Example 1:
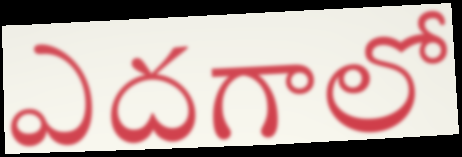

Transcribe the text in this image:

ఎదగాలో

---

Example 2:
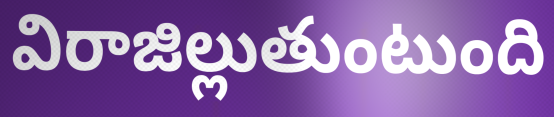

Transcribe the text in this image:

విరాజిల్లుతుంటుంది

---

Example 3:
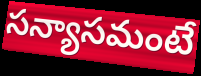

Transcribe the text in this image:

సన్యాసమంటే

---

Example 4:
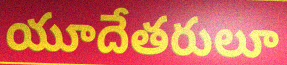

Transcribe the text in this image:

యూదేతరులూ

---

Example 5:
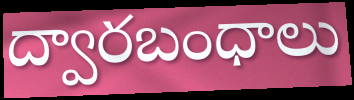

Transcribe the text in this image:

ద్వారబంధాలు